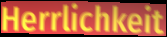
Herrlichkeit